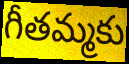
గీతమ్మకు